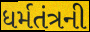
ધર્મતંત્રની